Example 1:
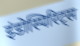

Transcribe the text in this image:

इंडोस्पिरिट्स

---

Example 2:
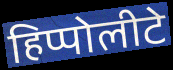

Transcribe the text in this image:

हिप्पोलीटे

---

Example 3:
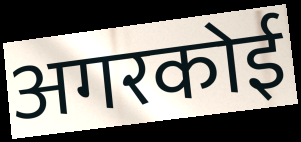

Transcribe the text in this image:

अगरकोई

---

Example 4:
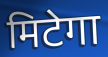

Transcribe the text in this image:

मिटेगा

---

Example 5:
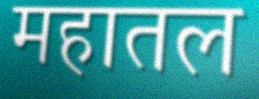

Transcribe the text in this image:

महातल